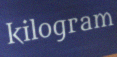
kilogram